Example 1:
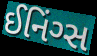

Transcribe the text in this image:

ઈનિંગ્સ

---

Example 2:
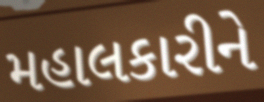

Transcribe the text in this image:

મહાલકારીને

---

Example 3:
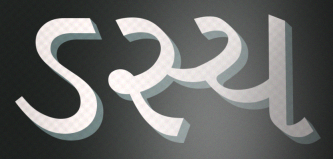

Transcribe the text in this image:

ઽસ્ય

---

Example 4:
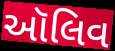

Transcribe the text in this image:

ઑલિવ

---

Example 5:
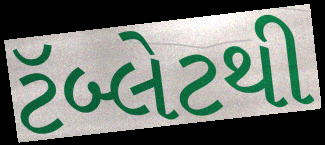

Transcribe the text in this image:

ટૅબ્લેટથી